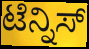
ಟೆನ್ನಿಸ್